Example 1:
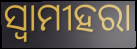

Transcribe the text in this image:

ସ୍ଵାମୀହରା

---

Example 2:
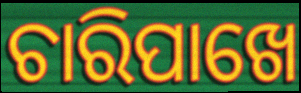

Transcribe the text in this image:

ଚାରିପାଖେ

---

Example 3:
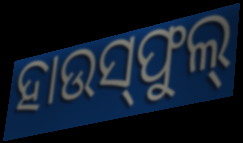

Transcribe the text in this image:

ହାଉସ୍‌ଫୁଲ୍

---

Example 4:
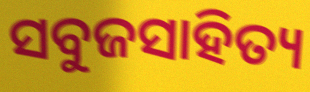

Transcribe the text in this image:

ସବୁଜସାହିତ୍ୟ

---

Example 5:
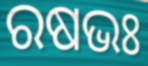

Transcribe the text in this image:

ରଷଭଃ